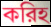
করিহ